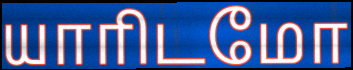
யாரிடமோ